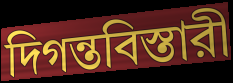
দিগন্তবিস্তারী